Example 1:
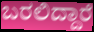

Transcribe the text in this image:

ಬರಲಿದ್ದಾರೆ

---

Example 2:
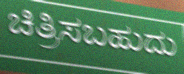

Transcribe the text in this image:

ಚಿತ್ರಿಸಬಹುದು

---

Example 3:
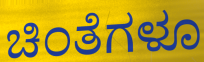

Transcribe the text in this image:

ಚಿಂತೆಗಳೂ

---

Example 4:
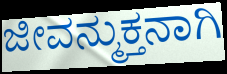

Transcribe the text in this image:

ಜೀವನ್ಮುಕ್ತನಾಗಿ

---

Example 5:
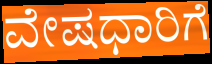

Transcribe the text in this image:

ವೇಷಧಾರಿಗೆ